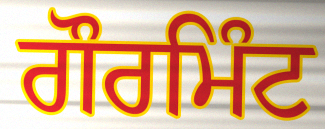
ਗੌਰਮਿੰਟ